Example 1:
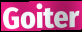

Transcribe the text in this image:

Goiter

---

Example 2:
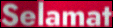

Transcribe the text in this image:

Selamat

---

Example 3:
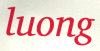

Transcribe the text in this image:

luong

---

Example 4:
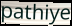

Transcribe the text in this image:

pathiye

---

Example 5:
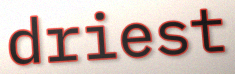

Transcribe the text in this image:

driest